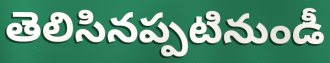
తెలిసినప్పటినుండీ